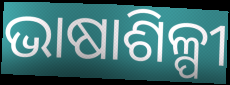
ଭାଷାଶିଳ୍ପୀ